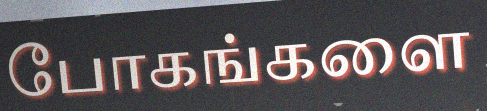
போகங்களை